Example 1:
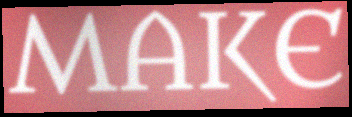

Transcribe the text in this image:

MAKE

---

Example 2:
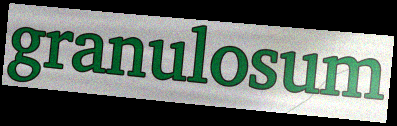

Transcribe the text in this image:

granulosum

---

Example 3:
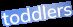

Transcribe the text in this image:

toddlers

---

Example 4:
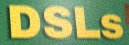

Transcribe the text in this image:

DSLs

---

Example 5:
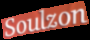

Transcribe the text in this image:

Soulzon